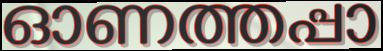
ഓണത്തപ്പാ